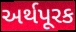
અર્થપૂરક